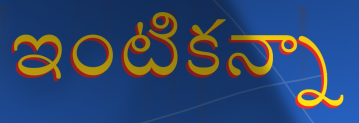
ఇంటికన్నా